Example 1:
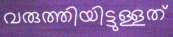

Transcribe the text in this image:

വരുത്തിയിട്ടുള്ളത്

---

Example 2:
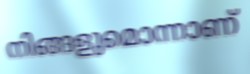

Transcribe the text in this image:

നിങ്ങളുമൊന്നാണ്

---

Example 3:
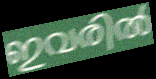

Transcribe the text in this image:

ഇവരിൽ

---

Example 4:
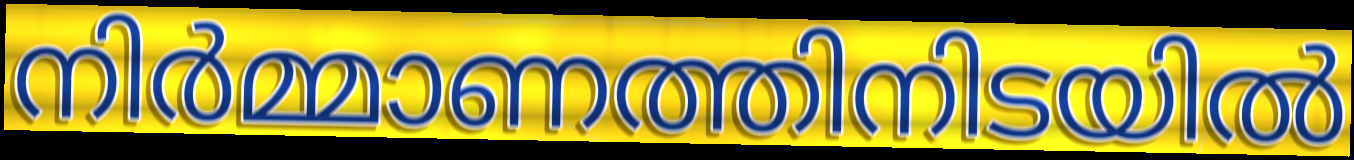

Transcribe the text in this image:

നിർമ്മാണത്തിനിടയിൽ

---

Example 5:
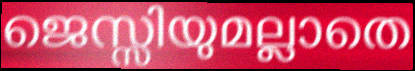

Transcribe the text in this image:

ജെസ്സിയുമല്ലാതെ